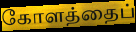
கோளத்தைப்